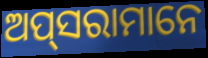
ଅପ୍‍ସରାମାନେ